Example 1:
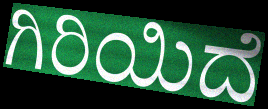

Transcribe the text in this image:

ಗಿರಿಯಿದೆ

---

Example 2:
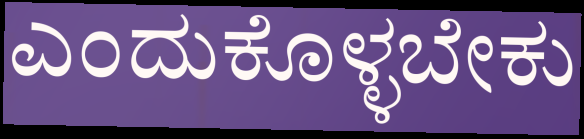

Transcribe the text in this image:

ಎಂದುಕೊಳ್ಳಬೇಕು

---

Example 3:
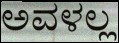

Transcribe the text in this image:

ಅವಳಲ್ಲ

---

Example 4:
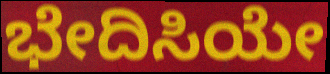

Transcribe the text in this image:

ಭೇದಿಸಿಯೇ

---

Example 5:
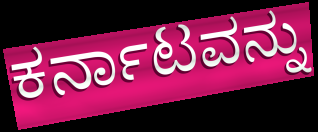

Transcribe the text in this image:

ಕರ್ನಾಟವನ್ನು